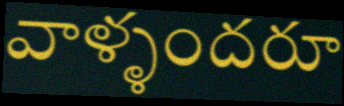
వాళ్ళందరూ